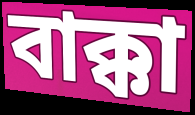
বাক্কা